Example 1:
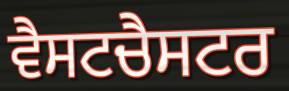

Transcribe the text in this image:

ਵੈਸਟਚੈਸਟਰ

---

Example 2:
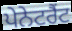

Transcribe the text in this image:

ਪੇਨੇਟਰੈਂਟ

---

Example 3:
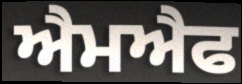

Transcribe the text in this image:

ਐਮਐਫ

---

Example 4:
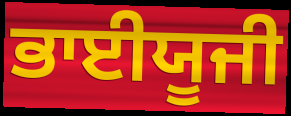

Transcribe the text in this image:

ਭਾਈਯੂਜੀ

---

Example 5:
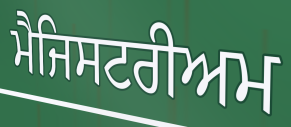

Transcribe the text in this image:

ਮੈਜਿਸਟਰੀਅਮ